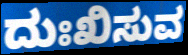
ದುಃಖಿಸುವ